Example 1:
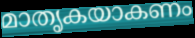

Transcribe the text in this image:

മാതൃകയാകണം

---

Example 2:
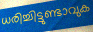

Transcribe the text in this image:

ധരിച്ചിട്ടുണ്ടാവുക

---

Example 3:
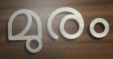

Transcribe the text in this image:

മുരം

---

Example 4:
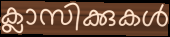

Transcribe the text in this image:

ക്ലാസിക്കുകൾ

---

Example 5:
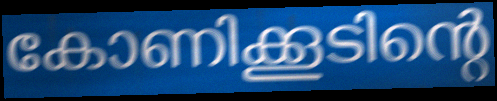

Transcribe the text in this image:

കോണിക്കൂടിന്റെ